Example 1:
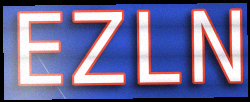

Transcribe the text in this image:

EZLN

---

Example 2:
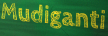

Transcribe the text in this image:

Mudiganti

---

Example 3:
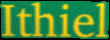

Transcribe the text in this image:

Ithiel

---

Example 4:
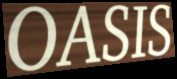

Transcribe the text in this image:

OASIS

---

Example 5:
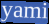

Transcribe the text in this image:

yami